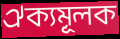
ঐক্যমূলক